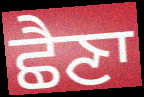
ਛੈਣਾ